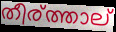
തീര്ത്താല്